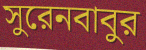
সুরেনবাবুর